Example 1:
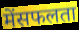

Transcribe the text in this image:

मेंसफलता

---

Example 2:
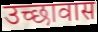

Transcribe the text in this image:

उच्छावास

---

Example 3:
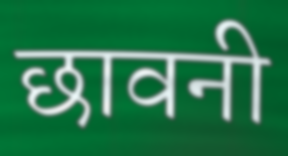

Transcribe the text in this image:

छावनी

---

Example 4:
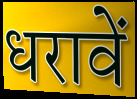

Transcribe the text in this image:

धरावें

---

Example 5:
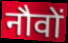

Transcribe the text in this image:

नौवों